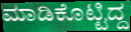
ಮಾಡಿಕೊಟ್ಟಿದ್ದ